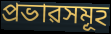
প্ৰভাৱসমূহ